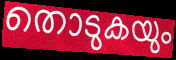
തൊടുകയും